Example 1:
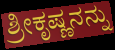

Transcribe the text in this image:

ಶ್ರೀಕೃಷ್ಣನನ್ನು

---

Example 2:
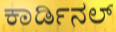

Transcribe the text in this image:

ಕಾರ್ಡಿನಲ್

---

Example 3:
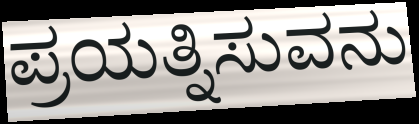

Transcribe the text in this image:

ಪ್ರಯತ್ನಿಸುವನು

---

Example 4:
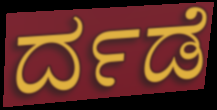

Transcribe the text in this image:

ರ್ದಡೆ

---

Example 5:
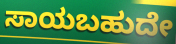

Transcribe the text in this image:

ಸಾಯಬಹುದೇ